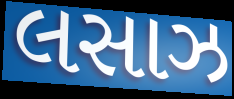
લસાઝ